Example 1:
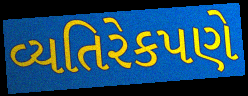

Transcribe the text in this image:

વ્યતિરેકપણે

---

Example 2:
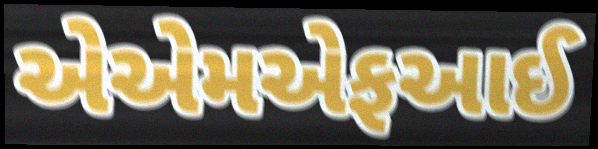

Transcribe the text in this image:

એએમએફઆઈ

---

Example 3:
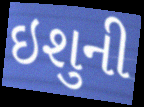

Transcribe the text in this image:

ઇશુની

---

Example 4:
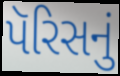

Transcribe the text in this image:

પૅરિસનું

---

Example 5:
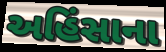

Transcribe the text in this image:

અહિંસાના